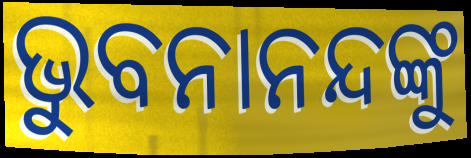
ଭୁବନାନନ୍ଦଙ୍କୁ